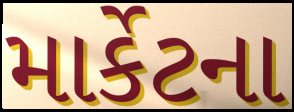
માર્કેટના